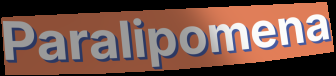
Paralipomena